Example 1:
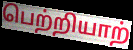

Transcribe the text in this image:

பெற்றியாற்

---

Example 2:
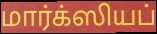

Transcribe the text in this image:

மார்க்ஸியப்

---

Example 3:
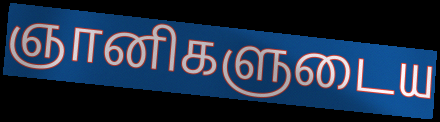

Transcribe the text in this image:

ஞானிகளுடைய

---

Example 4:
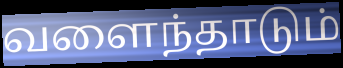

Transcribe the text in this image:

வளைந்தாடும்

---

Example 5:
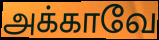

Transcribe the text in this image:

அக்காவே